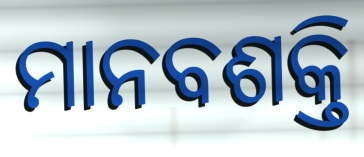
ମାନବଶକ୍ତି